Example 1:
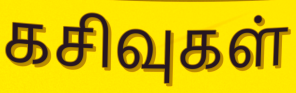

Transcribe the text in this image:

கசிவுகள்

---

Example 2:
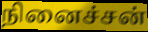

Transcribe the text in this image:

நினைச்சன்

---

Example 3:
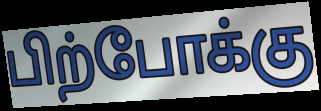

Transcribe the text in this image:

பிற்போக்கு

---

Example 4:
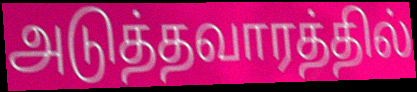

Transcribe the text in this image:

அடுத்தவாரத்தில்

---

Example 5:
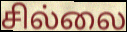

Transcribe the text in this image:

சில்லை